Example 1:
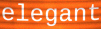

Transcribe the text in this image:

elegant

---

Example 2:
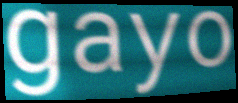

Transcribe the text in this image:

gayo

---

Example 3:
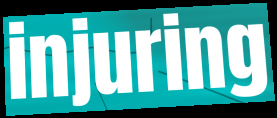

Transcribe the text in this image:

injuring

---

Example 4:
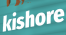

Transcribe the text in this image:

kishore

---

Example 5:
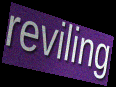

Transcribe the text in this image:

reviling